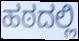
ಹಠದಲ್ಲಿ